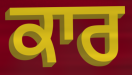
ਕਾਰ